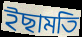
ইছামতি